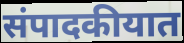
संपादकीयात